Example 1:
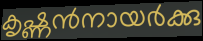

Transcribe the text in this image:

കൃഷ്ണൻനായർക്കു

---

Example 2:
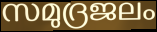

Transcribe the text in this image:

സമുദ്രജലം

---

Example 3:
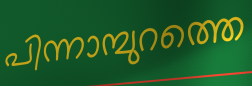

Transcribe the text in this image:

പിന്നാമ്പുറത്തെ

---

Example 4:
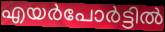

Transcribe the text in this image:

എയർപോർട്ടിൽ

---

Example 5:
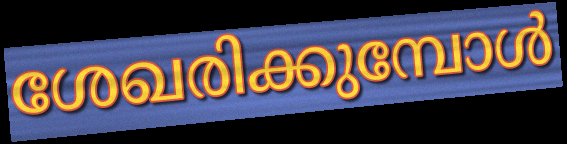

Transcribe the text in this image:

ശേഖരിക്കുമ്പോൾ